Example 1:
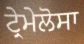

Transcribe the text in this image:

ਟ੍ਰੇਮੇਲੋਸਾ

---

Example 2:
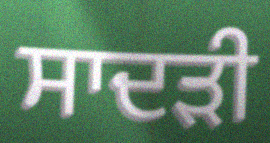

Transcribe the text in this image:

ਸਾਦੜੀ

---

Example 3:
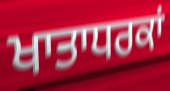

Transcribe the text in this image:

ਖਾਤਾਧਰਕਾਂ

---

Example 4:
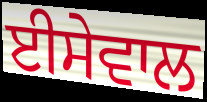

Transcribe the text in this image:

ਈਸੇਵਾਲ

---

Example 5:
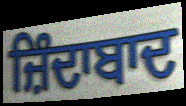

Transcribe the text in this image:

ਜ਼ਿੰਦਾਬਾਦ